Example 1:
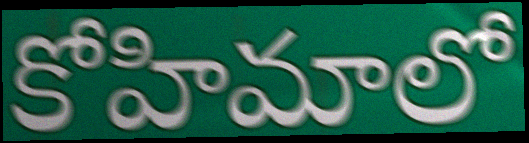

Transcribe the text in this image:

కోహిమాలో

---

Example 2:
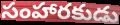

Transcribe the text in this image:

సంహారకుడు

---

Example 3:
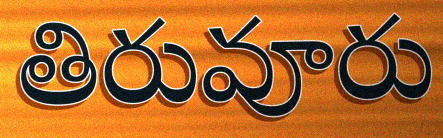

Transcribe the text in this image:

తిరువూరు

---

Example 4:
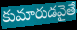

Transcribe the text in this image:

కుమారుడవైతే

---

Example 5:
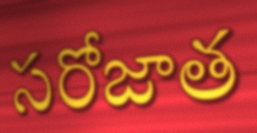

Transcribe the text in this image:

సరోజాత